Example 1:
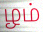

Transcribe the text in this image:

ழம்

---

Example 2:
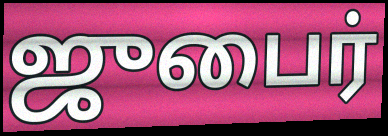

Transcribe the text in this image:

ஜுபைர்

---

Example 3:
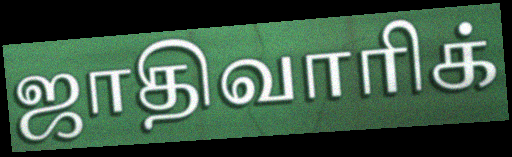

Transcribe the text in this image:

ஜாதிவாரிக்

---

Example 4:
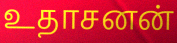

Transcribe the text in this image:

உதாசனன்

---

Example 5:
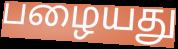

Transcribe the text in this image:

பழையது